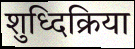
शुध्दिक्रिया